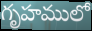
గృహములో